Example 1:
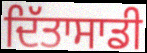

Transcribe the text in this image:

ਦਿੱਤਾਸਾਡੀ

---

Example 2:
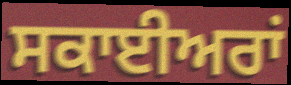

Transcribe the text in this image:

ਸਕਾਈਅਰਾਂ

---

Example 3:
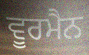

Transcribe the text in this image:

ਵੂਰਮੈਨ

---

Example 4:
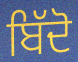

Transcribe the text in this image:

ਬਿੱਦੋ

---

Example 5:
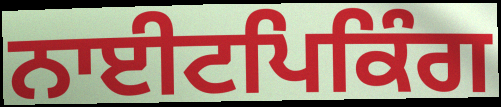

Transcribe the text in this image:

ਨਾਈਟਪਿਕਿੰਗ